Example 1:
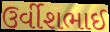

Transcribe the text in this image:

ઉર્વીશભાઈ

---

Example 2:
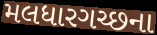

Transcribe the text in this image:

મલધારગચ્છના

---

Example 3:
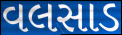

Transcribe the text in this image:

વલસાડ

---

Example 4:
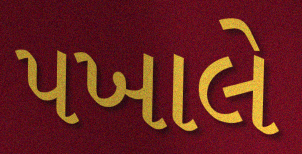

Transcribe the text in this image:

પખાલે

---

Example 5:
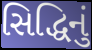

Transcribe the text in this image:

સિદ્ધિનું